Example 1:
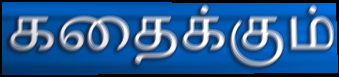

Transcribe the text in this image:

கதைக்கும்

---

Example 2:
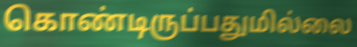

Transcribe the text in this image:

கொண்டிருப்பதுமில்லை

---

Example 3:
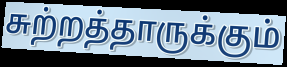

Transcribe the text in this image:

சுற்றத்தாருக்கும்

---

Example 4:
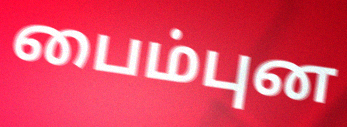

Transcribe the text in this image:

பைம்புன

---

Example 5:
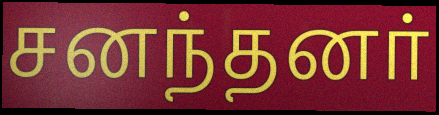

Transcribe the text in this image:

சனந்தனர்